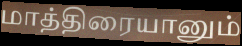
மாத்திரையானும்